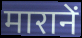
मारानें